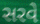
સરવે